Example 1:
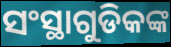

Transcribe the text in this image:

ସଂସ୍ଥାଗୁଡିକଙ୍କ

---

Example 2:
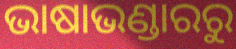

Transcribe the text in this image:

ଭାଷାଭଣ୍ଡାରରୁ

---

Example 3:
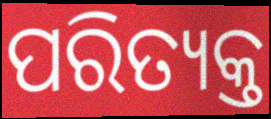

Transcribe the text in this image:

ପରିତ୍ଯକ୍ତ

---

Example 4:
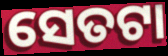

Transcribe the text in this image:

ସେତଟା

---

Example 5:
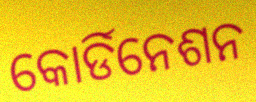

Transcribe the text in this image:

କୋର୍ଡିନେଶନ